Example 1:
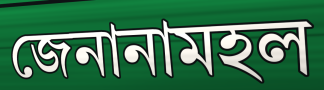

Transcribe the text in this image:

জেনানামহল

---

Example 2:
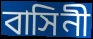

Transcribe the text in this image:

বাসিনী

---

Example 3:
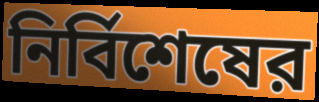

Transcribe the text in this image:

নির্বিশেষের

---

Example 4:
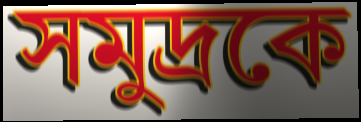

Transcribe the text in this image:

সমুদ্রকে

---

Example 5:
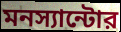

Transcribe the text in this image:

মনস্যান্টোর